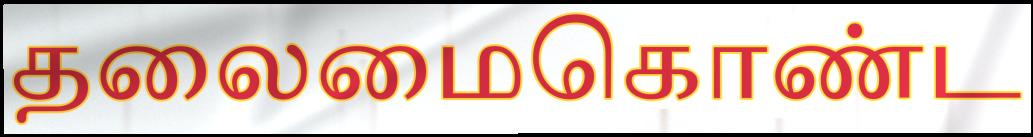
தலைமைகொண்ட